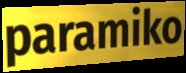
paramiko